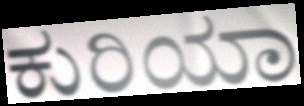
ಕುರಿಯಾ